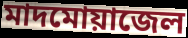
মাদমোয়াজেল